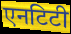
एनटिटी